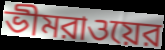
ভীমরাওয়ের